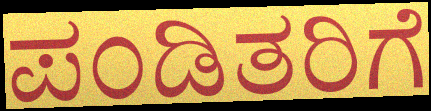
ಪಂಡಿತರಿಗೆ